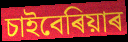
চাইবেৰিয়াৰ